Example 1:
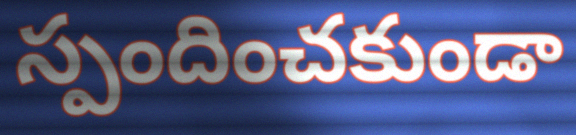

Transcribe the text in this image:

స్పందించకుండా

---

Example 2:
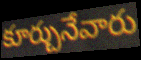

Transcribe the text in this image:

కూర్చునేవారు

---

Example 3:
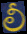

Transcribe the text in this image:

లీ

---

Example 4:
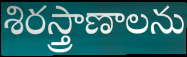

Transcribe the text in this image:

శిరస్త్రాణాలను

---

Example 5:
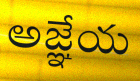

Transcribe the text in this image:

అజ్ఞేయ